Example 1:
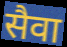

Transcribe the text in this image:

सैवा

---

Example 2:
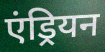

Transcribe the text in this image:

एंड्रियन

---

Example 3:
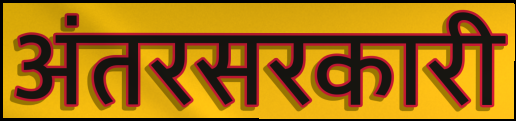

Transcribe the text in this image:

अंतरसरकारी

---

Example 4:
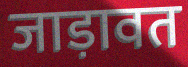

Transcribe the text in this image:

जाड़ावत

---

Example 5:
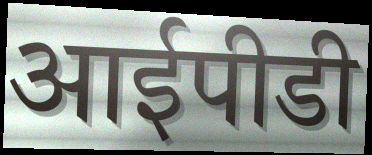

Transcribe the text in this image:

आईपीडी